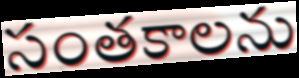
సంతకాలను